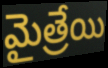
మైత్రేయి